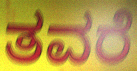
ತವರೆ